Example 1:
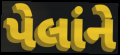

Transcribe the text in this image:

પેલાંને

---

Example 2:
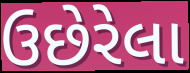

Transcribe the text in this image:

ઉછેરેલા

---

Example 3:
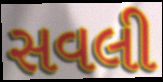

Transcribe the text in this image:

સવલી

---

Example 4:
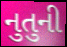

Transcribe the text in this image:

નુતુની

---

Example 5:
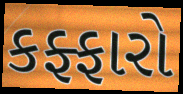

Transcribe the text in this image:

કફ્ફારો